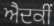
ਐਦਕੀਂ